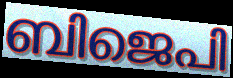
ബിജെപി